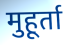
मुहूर्ता